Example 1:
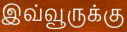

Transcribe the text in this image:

இவ்வூருக்கு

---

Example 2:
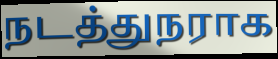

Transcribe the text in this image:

நடத்துநராக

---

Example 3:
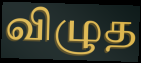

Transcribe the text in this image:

விழுத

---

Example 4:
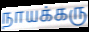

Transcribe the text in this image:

நாயக்கரு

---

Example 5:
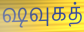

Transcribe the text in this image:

ஷவுகத்